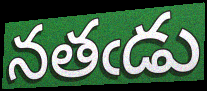
నతఁడు